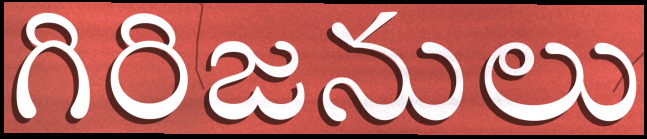
గిరిజనులు